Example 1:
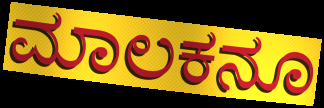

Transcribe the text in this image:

ಮಾಲಕನೂ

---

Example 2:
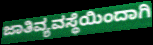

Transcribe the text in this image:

ಜಾತಿವ್ಯವಸ್ಥೆಯಿಂದಾಗಿ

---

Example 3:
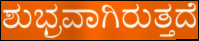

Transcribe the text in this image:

ಶುಭ್ರವಾಗಿರುತ್ತದೆ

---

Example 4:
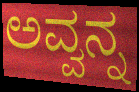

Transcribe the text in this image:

ಅವ್ವನ್ನ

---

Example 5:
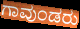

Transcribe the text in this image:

ಗಾವುಂಡರು